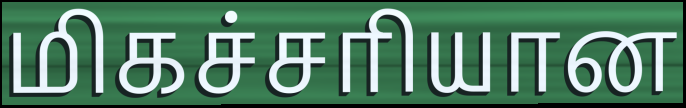
மிகச்சரியான